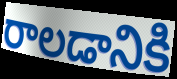
రాలడానికి